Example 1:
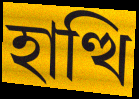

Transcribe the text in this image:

হাত্থি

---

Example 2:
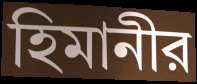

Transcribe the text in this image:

হিমানীর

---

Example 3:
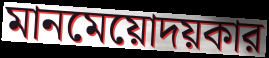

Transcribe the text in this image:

মানমেয়োদয়কার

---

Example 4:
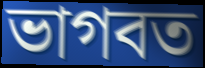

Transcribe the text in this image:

ভাগবত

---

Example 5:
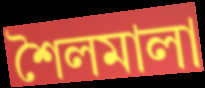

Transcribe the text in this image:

শৈলমালা